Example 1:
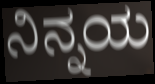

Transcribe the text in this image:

ನಿನ್ನಯ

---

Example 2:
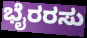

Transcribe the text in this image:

ಭೈರರಸು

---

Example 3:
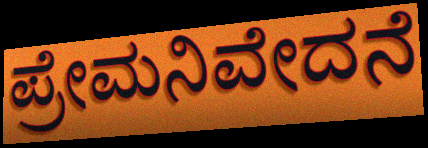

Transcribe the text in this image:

ಪ್ರೇಮನಿವೇದನೆ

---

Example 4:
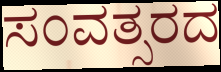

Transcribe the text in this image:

ಸಂವತ್ಸರದ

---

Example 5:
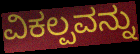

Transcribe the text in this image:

ವಿಕಲ್ಪವನ್ನು